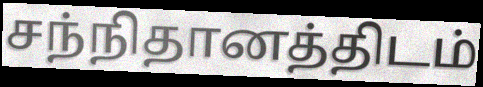
சந்நிதானத்திடம்